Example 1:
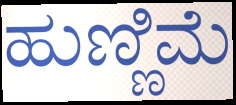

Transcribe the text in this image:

ಹುಣ್ಣಿಮೆ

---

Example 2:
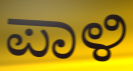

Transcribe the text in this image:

ಪಾಳಿ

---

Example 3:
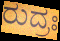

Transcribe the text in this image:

ರುದ್ರಃ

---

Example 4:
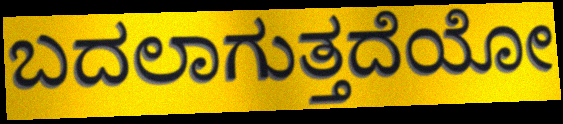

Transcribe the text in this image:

ಬದಲಾಗುತ್ತದೆಯೋ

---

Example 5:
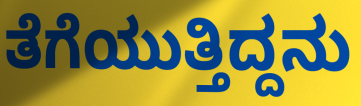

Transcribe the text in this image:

ತೆಗೆಯುತ್ತಿದ್ದನು